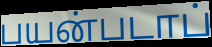
பயன்படாப்